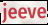
jeeve